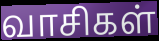
வாசிகள்